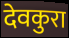
देवकुरा